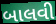
બાલવી